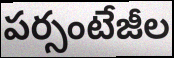
పర్సంటేజీల